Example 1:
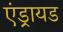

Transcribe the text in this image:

एंड्रायड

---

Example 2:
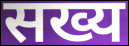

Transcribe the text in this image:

सख्य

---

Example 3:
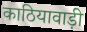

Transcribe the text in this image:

काठियावाड़ी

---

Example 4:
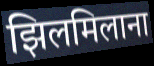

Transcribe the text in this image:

झिलमिलाना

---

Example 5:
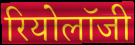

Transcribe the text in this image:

रियोलॉजी